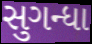
સુગન્ધા